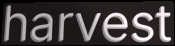
harvest